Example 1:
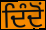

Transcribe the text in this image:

ਦਿੰਦੋਂ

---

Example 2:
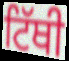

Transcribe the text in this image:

ਟਿੱਥੀ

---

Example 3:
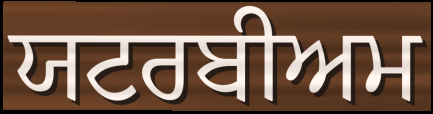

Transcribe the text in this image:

ਯਟਰਬੀਅਮ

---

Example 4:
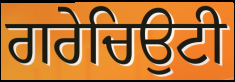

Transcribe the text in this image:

ਗਰੇਚਿਉਟੀ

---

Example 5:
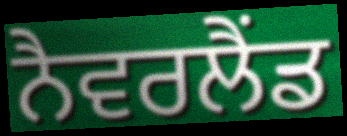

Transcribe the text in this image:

ਨੈਵਰਲੈਂਡ